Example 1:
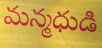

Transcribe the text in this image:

మన్మధుడి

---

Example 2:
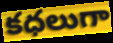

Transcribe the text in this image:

కధలుగా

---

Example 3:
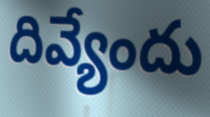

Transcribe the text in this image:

దివ్యేందు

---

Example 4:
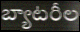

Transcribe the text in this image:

బ్యాటరీల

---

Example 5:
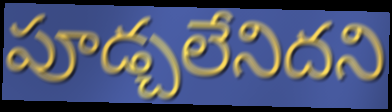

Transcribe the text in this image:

పూడ్చలేనిదని